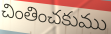
చింతించకుము